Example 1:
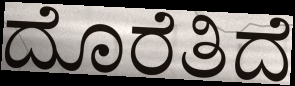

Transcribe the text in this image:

ದೊರೆತಿದೆ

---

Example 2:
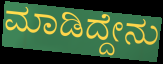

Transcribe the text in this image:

ಮಾಡಿದ್ದೇನು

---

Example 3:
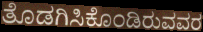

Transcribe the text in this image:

ತೊಡಗಿಸಿಕೊಂಡಿರುವವರ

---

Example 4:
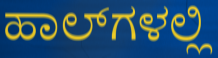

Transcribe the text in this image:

ಹಾಲ್‌ಗಳಲ್ಲಿ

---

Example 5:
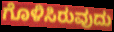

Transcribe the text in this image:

ಗೊಳಿಸಿರುವುದು